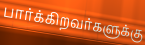
பார்க்கிறவர்களுக்கு